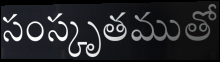
సంస్కృతముతో